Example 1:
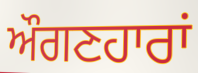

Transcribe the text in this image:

ਔਗਣਹਾਰਾਂ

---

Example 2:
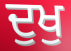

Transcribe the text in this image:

ਦੁਖੁ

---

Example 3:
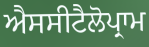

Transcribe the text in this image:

ਐਸਸੀਟੈਲੋਪ੍ਰਾਮ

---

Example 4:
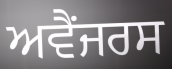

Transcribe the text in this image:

ਅਵੈਂਜਰਸ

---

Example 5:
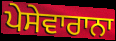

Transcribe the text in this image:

ਪੇਸੇਵਾਰਾਨਾ